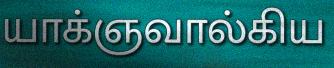
யாக்ஞவால்கிய